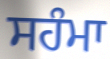
ਸਹੰਮਾ